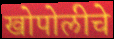
खोपोलीचे